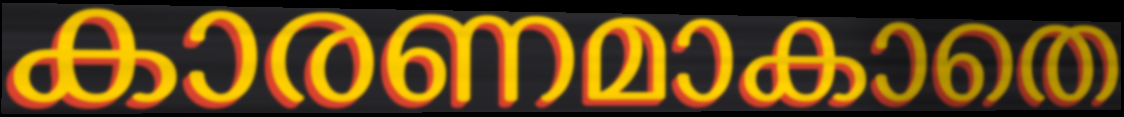
കാരണമാകാതെ